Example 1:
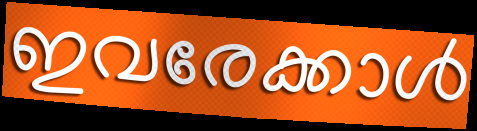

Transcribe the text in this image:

ഇവരേക്കാൾ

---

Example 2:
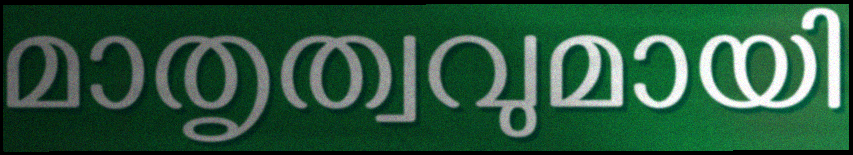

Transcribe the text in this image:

മാതൃത്വവുമായി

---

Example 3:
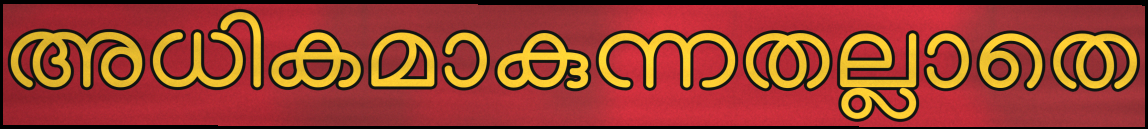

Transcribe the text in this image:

അധികമാകുന്നതല്ലാതെ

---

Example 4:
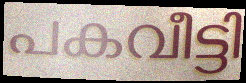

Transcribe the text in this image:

പകവീട്ടി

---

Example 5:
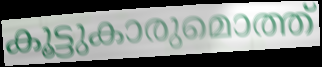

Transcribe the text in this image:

കൂട്ടുകാരുമൊത്ത്